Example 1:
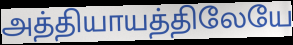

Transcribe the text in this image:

அத்தியாயத்திலேயே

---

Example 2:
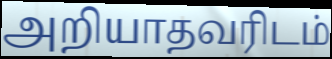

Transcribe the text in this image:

அறியாதவரிடம்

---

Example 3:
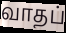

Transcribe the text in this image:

வாதப்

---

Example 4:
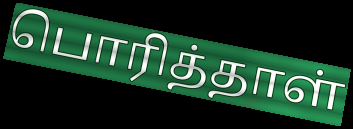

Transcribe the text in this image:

பொரித்தாள்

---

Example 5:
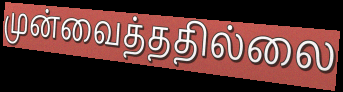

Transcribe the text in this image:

முன்வைத்ததில்லை